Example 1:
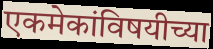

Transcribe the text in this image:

एकमेकांविषयीच्या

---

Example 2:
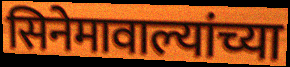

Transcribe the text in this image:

सिनेमावाल्यांच्या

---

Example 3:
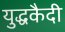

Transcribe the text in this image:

युद्धकैदी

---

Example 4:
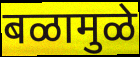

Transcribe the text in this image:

बळामुळे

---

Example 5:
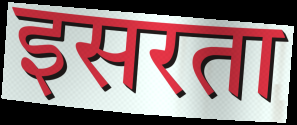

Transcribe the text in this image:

इसरता